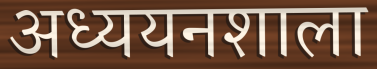
अध्ययनशाला